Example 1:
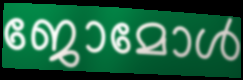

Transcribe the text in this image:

ജോമോൾ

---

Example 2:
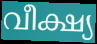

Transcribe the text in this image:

വീക്ഷ്യ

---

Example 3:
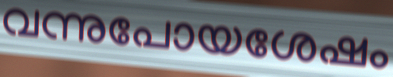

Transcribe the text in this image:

വന്നുപോയശേഷം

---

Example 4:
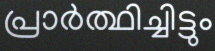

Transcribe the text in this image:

പ്രാർത്ഥിച്ചിട്ടും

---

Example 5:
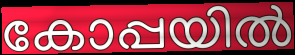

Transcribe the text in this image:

കോപ്പയിൽ